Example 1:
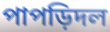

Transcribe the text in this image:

পাপড়িদল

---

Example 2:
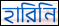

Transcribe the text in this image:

হারিনি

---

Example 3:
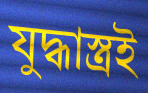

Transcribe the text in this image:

যুদ্ধাস্ত্রই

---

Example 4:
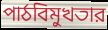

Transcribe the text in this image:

পাঠবিমুখতার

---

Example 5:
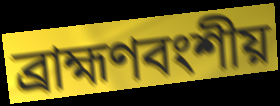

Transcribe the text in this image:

ব্রাহ্মণবংশীয়